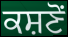
ਕਸ਼ਣੋਂ